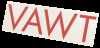
VAWT